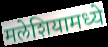
मलेशियामध्ये